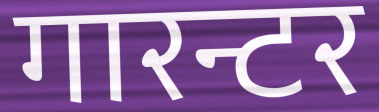
गारन्टर